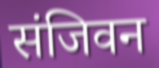
संजिवन